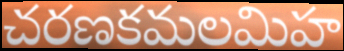
చరణకమలమిహ